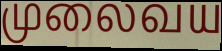
முலைவய